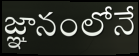
జ్ఞానంలోనే